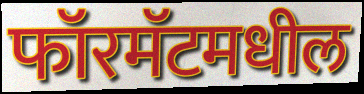
फॉरमॅटमधील